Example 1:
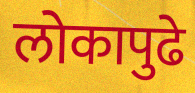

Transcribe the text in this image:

लोकापुढे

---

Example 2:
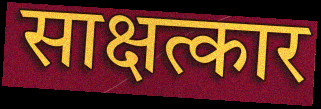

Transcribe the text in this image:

साक्षत्कार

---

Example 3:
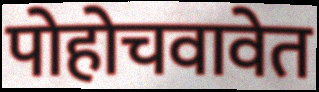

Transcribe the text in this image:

पोहोचवावेत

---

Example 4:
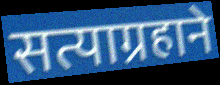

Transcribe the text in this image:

सत्याग्रहाने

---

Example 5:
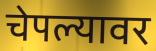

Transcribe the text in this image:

चेपल्यावर